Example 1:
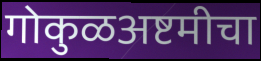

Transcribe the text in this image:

गोकुळअष्टमीचा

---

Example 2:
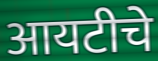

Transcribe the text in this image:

आयटीचे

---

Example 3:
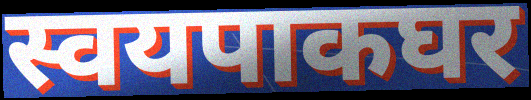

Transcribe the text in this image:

स्वयपाकघर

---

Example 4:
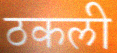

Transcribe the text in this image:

ठकली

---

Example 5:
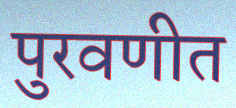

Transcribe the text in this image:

पुरवणीत